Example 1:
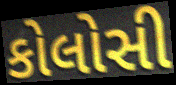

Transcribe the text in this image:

કોલોસી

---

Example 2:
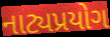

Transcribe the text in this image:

નાટ્યપ્રયોગ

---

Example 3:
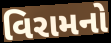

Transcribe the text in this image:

વિરામનો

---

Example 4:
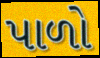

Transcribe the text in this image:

પાળો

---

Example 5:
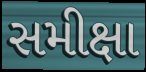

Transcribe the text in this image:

સમીક્ષા